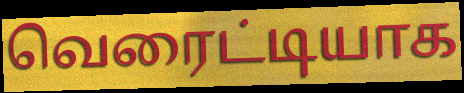
வெரைட்டியாக